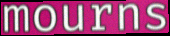
mourns